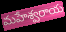
మహేశ్వరాయ